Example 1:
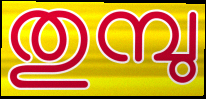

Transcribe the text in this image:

തുമ്പു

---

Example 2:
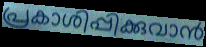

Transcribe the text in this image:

പ്രകാശിപ്പിക്കുവാൻ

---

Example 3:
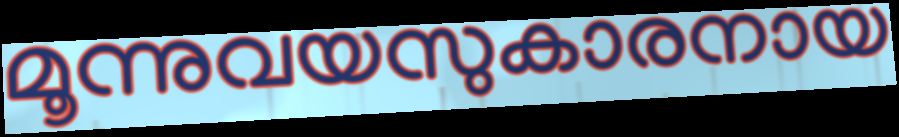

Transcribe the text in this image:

മൂന്നുവയസുകാരനായ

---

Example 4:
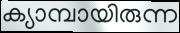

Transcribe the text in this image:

ക്യാമ്പായിരുന്ന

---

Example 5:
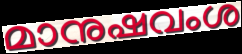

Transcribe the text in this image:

മാനുഷവംശ